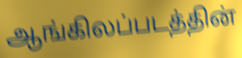
ஆங்கிலப்படத்தின்